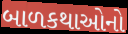
બાળકથાઓનો